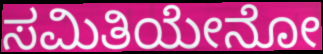
ಸಮಿತಿಯೇನೋ